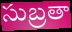
సుబ్రతా